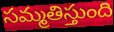
సమ్మతిస్తుంది